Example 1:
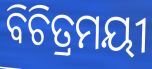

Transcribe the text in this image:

ବିଚିତ୍ରମୟୀ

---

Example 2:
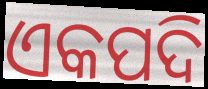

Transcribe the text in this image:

ଏକପଦି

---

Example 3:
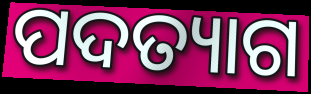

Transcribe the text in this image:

ପଦତ୍ୟାଗ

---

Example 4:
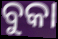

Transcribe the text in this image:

ବୁକା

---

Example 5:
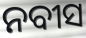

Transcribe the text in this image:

ନବୀସ